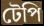
টেপি